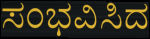
ಸಂಭವಿಸಿದ